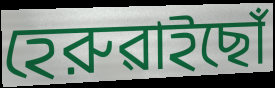
হেৰুৱাইছোঁ